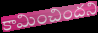
కామించిందని